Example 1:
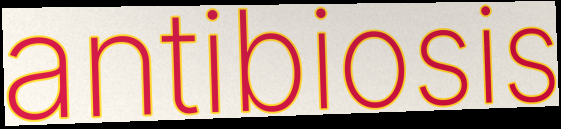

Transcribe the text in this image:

antibiosis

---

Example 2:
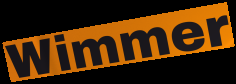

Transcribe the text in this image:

Wimmer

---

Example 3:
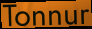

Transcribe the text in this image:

Tonnur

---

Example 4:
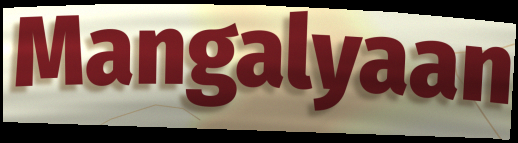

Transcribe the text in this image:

Mangalyaan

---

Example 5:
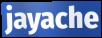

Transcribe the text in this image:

jayache